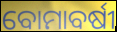
ବୋମାବର୍ଷୀ